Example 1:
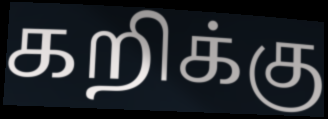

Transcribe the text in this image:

கறிக்கு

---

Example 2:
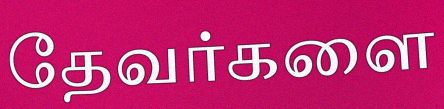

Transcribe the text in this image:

தேவர்களை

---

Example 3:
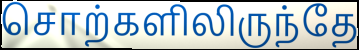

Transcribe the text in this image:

சொற்களிலிருந்தே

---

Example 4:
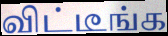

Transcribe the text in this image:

விட்டீங்க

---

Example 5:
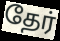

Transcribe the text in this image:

தேர்